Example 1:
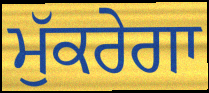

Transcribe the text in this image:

ਮੁੱਕਰੇਗਾ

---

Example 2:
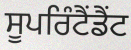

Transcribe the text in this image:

ਸੂਪਰਿੰਟੈਂਡੈਂਟ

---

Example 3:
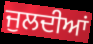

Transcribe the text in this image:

ਜੁਲਦੀਆਂ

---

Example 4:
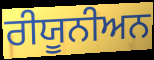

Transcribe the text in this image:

ਰੀਯੂਨੀਅਨ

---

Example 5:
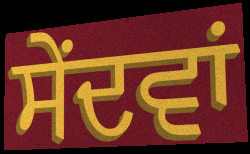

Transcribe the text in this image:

ਸੇਂਦਵਾਂ